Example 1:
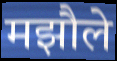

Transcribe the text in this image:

मझौले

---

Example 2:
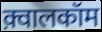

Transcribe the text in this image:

क़्वालकॉम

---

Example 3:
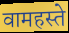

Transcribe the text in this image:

वामहस्ते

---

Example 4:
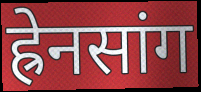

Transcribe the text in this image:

ह्रेनसांग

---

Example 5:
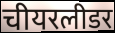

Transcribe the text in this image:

चीयरलीडर